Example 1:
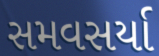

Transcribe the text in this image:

સમવસર્યા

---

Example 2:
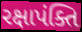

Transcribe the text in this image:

રક્ષાપંક્તિ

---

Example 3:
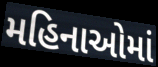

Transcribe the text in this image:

મહિનાઓમાં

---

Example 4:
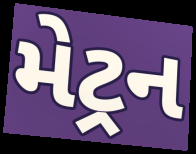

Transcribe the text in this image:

મેટ્રન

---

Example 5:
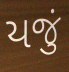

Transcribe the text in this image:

યજું